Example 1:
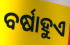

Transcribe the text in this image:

ବର୍ଷାହୁଏ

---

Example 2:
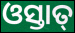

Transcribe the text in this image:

ଓସ୍ତାତ୍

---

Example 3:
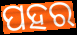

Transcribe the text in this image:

ପହର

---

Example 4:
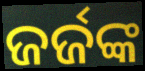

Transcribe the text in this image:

ଜର୍ଜଙ୍କ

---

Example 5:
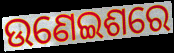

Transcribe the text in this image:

ଉଣେଇଶରେ